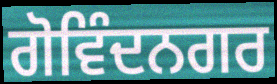
ਗੋਵਿੰਦਨਗਰ